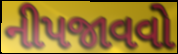
નીપજાવવો